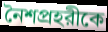
নৈশপ্রহরীকে